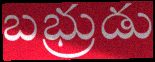
బభ్రుడు